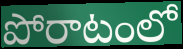
పోరాటంలో